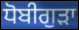
ਧੋਬੀਗੁੜਾ